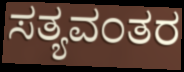
ಸತ್ಯವಂತರ